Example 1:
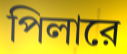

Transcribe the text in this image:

পিলারে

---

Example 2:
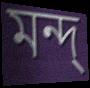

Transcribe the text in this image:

মন্দ্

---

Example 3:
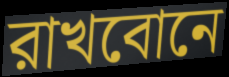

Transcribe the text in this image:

রাখবোনে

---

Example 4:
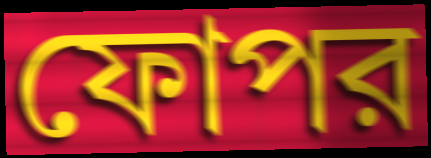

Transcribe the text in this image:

ফোপর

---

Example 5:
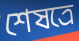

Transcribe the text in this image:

শেষত্রে